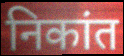
निकांत